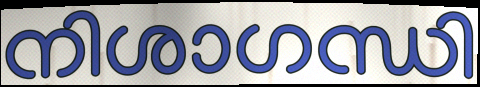
നിശാഗന്ധി